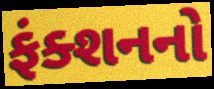
ફંક્શનનો